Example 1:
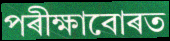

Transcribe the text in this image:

পৰীক্ষাবোৰত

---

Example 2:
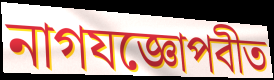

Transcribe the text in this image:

নাগযজ্ঞোপবীত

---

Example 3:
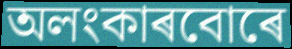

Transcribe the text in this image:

অলংকাৰবোৰে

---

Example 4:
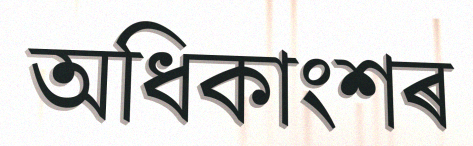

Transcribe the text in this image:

অধিকাংশৰ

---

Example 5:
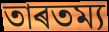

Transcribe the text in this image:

তাৰতম্য